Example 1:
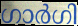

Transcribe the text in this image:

ഗാർഗി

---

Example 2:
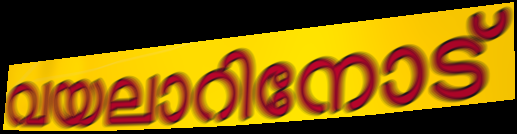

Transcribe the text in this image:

വയലാറിനോട്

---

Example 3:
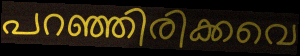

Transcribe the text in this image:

പറഞ്ഞിരിക്കവെ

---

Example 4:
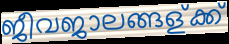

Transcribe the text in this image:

ജീവജാലങ്ങള്ക്ക്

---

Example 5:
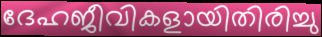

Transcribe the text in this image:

ദേഹജീവികളായിതിരിച്ചു